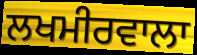
ਲਖਮੀਰਵਾਲਾ